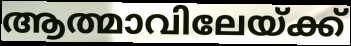
ആത്മാവിലേയ്ക്ക്